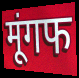
मूंगफ